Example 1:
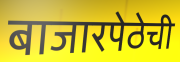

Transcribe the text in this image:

बाजारपेठेची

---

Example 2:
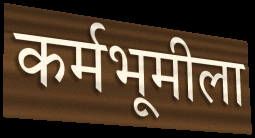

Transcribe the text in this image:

कर्मभूमीला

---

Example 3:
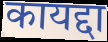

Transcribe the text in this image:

कायद्दा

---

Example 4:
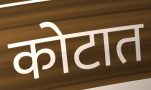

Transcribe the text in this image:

कोटात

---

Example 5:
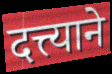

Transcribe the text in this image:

दत्त्याने